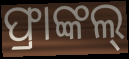
ଫ୍ରାଙ୍କଲ୍